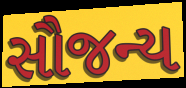
સૌજન્ય